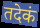
तदेकं